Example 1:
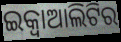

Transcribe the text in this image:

ଇକ୍ୱାଆଲିଟିର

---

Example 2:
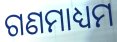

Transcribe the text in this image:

ଗଣମାଧ୍ୟମ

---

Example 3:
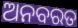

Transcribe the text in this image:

ଅନବରତ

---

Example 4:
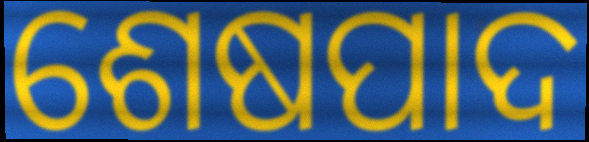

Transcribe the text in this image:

ଶେଷପାଦ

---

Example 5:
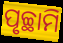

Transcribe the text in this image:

ପୃଚ୍ଛାମି